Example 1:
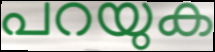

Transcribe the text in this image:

പറയുക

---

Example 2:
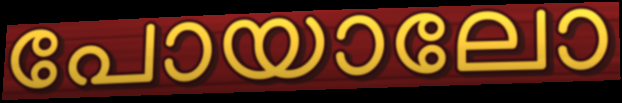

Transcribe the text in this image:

പോയാലോ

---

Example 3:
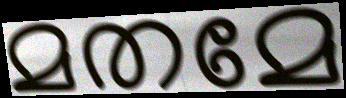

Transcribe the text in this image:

മതമേ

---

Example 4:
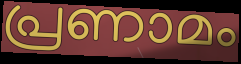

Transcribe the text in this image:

പ്രണാമം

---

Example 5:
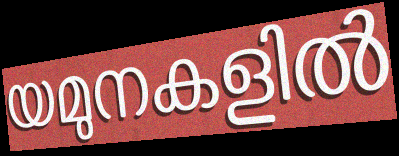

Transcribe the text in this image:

യമുനകളിൽ